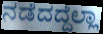
ನಡೆದದ್ದೆಲ್ಲಾ